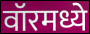
वॉरमध्ये